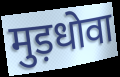
मुड़धोवा